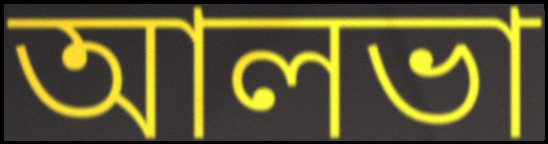
আলভা